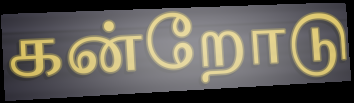
கன்றோடு